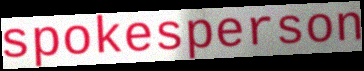
spokesperson